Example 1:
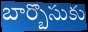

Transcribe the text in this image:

బార్బొసుకు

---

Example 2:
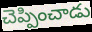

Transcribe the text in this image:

చెప్పించాడు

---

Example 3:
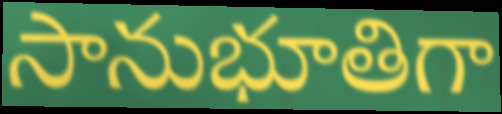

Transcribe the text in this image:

సానుభూతిగా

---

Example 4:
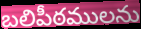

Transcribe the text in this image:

బలిపీఠములను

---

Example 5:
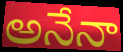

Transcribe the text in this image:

అనేనా